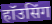
हॉउसिंग